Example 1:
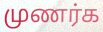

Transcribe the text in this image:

முணர்க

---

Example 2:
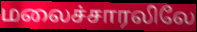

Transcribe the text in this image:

மலைச்சாரலிலே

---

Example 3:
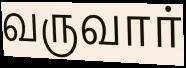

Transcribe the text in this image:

வருவார்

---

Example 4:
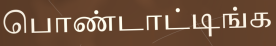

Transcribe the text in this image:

பொண்டாட்டிங்க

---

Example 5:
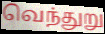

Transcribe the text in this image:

வெந்துறு